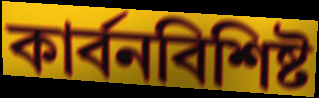
কার্বনবিশিষ্ট